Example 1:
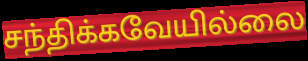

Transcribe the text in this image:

சந்திக்கவேயில்லை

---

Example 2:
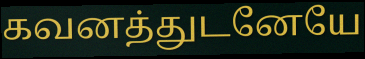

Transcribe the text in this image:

கவனத்துடனேயே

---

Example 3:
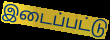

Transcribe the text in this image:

இடைப்பட்டு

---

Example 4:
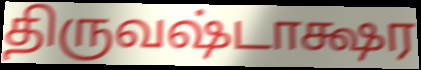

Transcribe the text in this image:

திருவஷ்டாக்ஷர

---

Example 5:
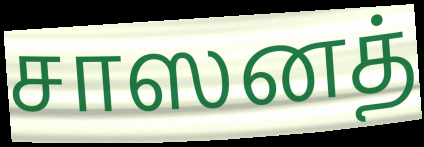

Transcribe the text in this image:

சாஸனத்